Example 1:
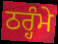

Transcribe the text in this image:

ਠਰ੍ਹੰਮੇ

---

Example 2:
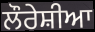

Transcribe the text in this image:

ਲੌਰੇਸ਼ੀਆ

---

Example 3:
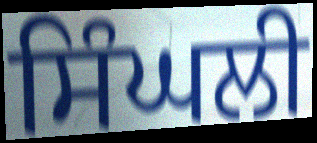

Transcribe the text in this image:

ਸਿੰਘਲੀ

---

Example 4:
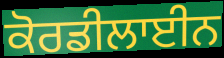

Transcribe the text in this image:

ਕੋਰਡੀਲਾਈਨ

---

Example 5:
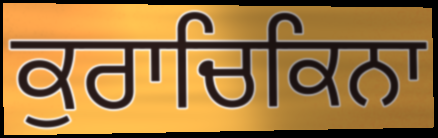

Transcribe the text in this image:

ਕੁਰਾਚਿਕਿਨਾ